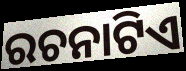
ରଚନାଟିଏ